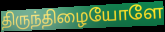
திருந்திழையோளே